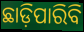
ଛାଡ଼ିପାରିବି